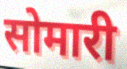
सोमारी